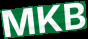
MKB